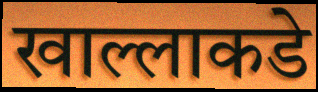
खाल्लाकडे